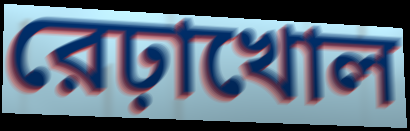
রেঢ়াখোল